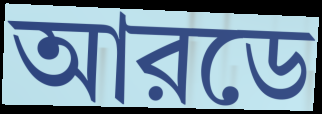
আরডে